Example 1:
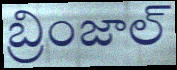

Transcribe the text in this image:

బ్రింజాల్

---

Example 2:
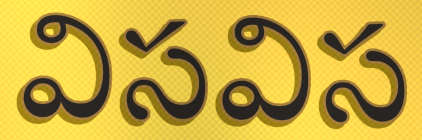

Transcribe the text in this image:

విసవిస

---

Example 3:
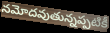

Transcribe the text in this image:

నమోదవుతున్నప్పటికీ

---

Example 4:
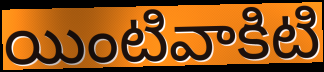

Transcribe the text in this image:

యింటివాకిటి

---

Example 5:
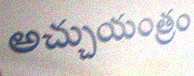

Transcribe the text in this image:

అచ్చుయంత్రం